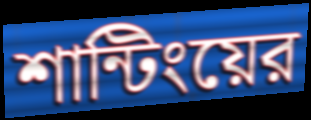
শান্টিংয়ের